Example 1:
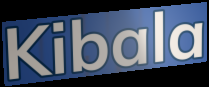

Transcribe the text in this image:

Kibala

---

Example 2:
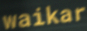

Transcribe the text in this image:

waikar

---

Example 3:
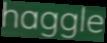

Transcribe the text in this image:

haggle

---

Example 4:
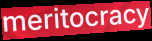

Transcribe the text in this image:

meritocracy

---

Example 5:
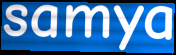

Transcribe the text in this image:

samya